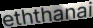
eththanai